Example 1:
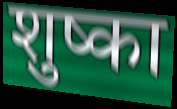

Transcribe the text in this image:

शुष्का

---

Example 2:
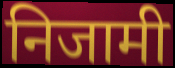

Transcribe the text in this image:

निजामी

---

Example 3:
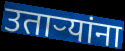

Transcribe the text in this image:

उताऱ्यांना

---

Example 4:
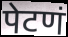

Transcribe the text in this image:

पेटणं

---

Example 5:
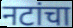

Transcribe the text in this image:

नटांचा